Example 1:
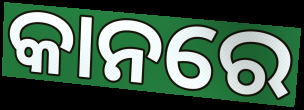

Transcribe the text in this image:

କାନରେ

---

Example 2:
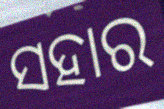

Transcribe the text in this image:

ସହାର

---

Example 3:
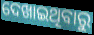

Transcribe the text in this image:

ଦେଖାଇଥିବାରୁ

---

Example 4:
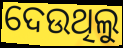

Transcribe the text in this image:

ଦେଉଥିଲୁ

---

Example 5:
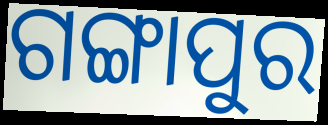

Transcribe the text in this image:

ଗଙ୍ଗାପୁର